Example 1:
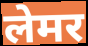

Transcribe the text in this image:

लेमर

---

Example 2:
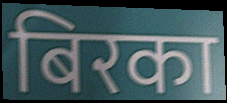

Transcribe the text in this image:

बिरका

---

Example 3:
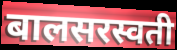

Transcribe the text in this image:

बालसरस्वती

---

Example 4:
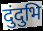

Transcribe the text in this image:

दुंदुभि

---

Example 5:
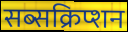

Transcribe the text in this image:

सब्सक्रिप्शन